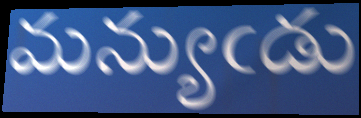
మన్యుఁడు